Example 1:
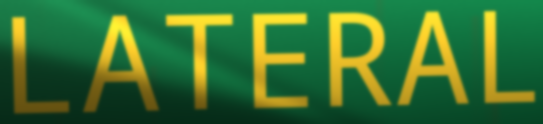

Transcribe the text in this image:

LATERAL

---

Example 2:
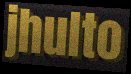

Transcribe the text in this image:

jhulto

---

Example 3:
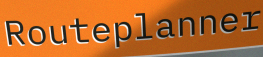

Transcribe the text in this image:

Routeplanner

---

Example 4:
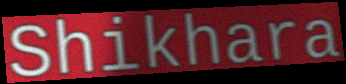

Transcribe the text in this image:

Shikhara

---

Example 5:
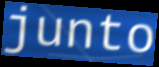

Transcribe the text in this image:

junto